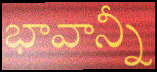
భావాన్నీ